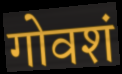
गोवशं